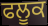
ਫਲੂਕ